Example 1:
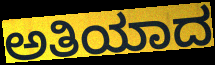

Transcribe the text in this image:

ಅತಿಯಾದ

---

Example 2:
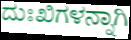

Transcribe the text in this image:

ದುಃಖಿಗಳನ್ನಾಗಿ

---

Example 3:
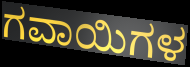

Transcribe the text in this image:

ಗವಾಯಿಗಳ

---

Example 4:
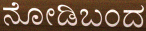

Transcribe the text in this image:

ನೋಡಿಬಂದ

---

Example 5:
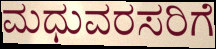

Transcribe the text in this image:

ಮಧುವರಸರಿಗೆ